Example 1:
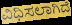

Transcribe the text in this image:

ವಿಧಿಸಲಾಗಿದೆ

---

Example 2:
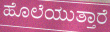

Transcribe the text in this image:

ಹೊಲೆಯುತ್ತಾರೆ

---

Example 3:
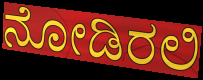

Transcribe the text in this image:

ನೋಡಿರಲಿ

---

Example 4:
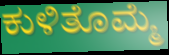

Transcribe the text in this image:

ಕುಳಿತೊಮ್ಮೆ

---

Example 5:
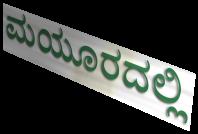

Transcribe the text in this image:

ಮಯೂರದಲ್ಲಿ